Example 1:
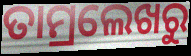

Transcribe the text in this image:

ତାମ୍ରଲେଖରୁ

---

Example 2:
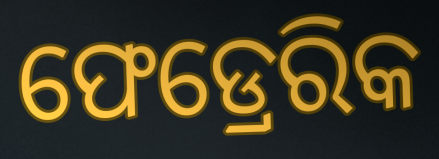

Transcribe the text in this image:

ଫେଡ୍ରେରିକ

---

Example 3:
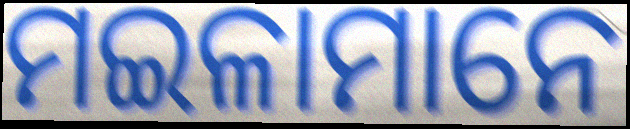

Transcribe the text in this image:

ମଇଳାମାନେ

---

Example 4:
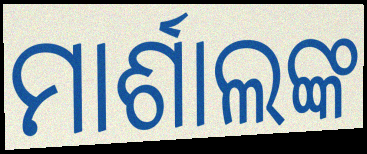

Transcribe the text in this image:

ମାର୍ଶାଲଙ୍କ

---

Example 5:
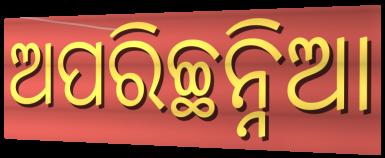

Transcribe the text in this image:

ଅପରିଚ୍ଛନ୍ନିଆ